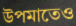
উপমাতেও